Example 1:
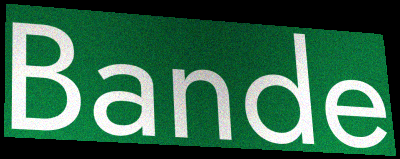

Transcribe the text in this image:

Bande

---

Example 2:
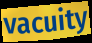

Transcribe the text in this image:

vacuity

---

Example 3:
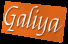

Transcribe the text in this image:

Galiya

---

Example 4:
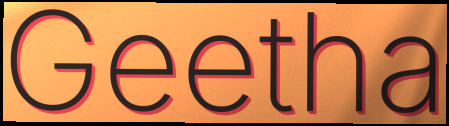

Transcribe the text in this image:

Geetha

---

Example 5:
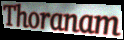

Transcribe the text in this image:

Thoranam